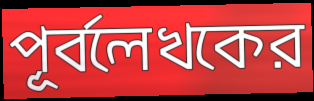
পূর্বলেখকের